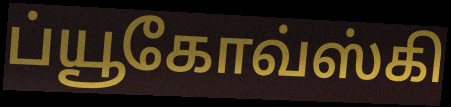
ப்யூகோவ்ஸ்கி